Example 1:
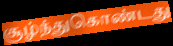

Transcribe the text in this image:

சூழ்ந்துகொண்டது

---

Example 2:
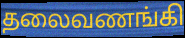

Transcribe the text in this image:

தலைவணங்கி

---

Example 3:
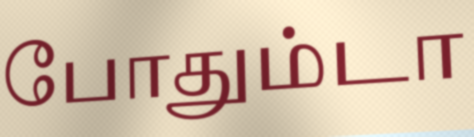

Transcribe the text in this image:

போதும்டா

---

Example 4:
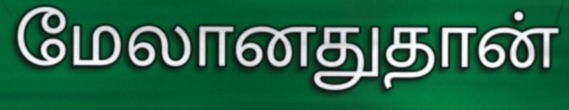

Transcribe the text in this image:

மேலானதுதான்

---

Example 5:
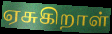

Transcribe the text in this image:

ஏசுகிறாள்